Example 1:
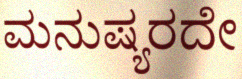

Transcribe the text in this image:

ಮನುಷ್ಯರದೇ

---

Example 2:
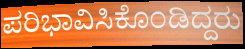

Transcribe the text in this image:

ಪರಿಭಾವಿಸಿಕೊಂಡಿದ್ದರು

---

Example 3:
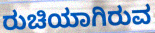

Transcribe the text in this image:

ರುಚಿಯಾಗಿರುವ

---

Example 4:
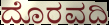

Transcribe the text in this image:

ದೊರವದಿ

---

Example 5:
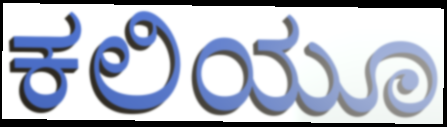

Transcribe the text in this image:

ಕಲಿಯೂ